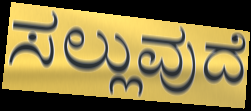
ಸಲ್ಲುವುದೆ